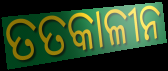
ତତକାଳୀନ